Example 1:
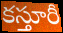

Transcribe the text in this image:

కస్తూరీ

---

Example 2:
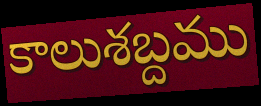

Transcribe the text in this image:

కాలుశబ్దము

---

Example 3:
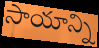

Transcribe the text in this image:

సాయాన్ని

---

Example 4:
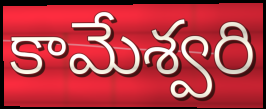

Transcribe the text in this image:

కామేశ్వరి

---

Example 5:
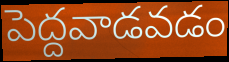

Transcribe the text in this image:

పెద్దవాడవడం